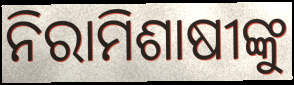
ନିରାମିଶାଷୀଙ୍କୁ